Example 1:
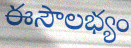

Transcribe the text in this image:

ఈసౌలభ్యం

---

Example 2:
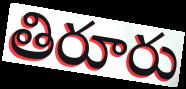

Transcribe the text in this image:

తిరూరు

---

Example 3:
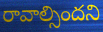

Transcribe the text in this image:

రావాల్సిందని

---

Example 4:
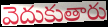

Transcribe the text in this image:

వెదుకుతారు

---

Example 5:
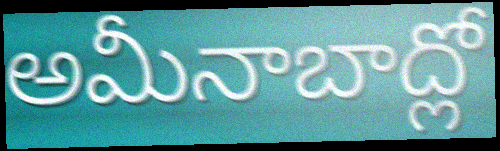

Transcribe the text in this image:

అమీనాబాద్లో